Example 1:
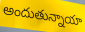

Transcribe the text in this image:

అందుతున్నాయా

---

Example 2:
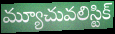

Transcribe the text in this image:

మ్యూచువలిస్టిక్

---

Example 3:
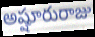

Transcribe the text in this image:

అష్షూరురాజు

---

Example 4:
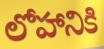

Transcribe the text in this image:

లోహానికి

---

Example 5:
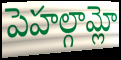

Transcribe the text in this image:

పెహల్గామ్లో